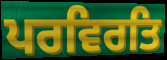
ਪਰਵਿਰਤਿ